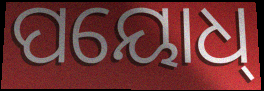
ପୟୋଧ୍